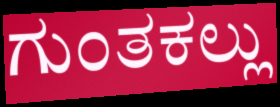
ಗುಂತಕಲ್ಲು